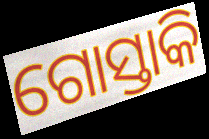
ଗୋସ୍ତାକି